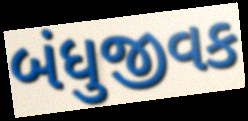
બંધુજીવક